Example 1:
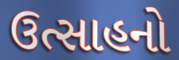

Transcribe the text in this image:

ઉત્સાહનો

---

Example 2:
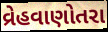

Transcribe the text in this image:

વ્રેહવાણોતરા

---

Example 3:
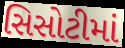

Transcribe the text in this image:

સિસોટીમાં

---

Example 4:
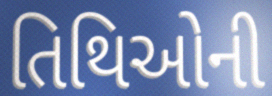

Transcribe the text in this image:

તિથિઓની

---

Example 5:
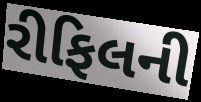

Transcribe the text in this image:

રીફિલની